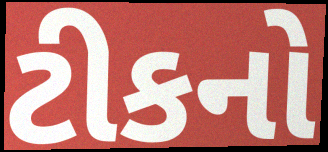
ટીકનો